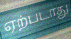
ஏற்படாது